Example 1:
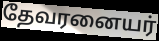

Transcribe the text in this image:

தேவரனையர்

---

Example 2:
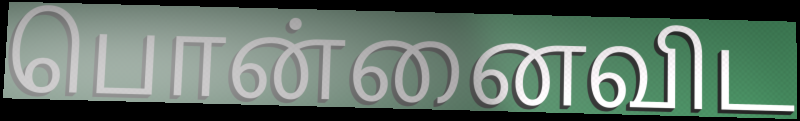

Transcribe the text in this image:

பொன்னைவிட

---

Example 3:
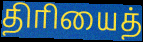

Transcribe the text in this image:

திரியைத்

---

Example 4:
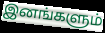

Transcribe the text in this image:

இனங்களும்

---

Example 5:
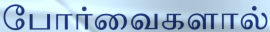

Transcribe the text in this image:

போர்வைகளால்